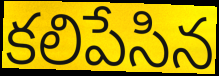
కలిపేసిన